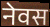
नेवस